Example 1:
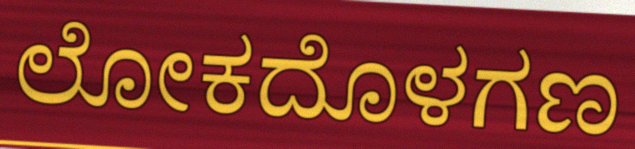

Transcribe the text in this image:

ಲೋಕದೊಳಗಣ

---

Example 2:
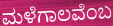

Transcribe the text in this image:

ಮಳೆಗಾಲವೆಂಬ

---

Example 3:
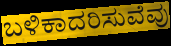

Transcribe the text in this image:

ಬಳಿಕಾದರಿಸುವೆವು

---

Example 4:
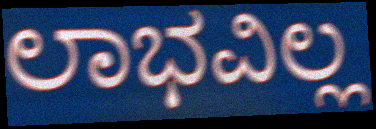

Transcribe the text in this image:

ಲಾಭವಿಲ್ಲ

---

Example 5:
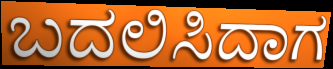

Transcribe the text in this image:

ಬದಲಿಸಿದಾಗ